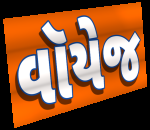
વૉયેજ